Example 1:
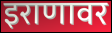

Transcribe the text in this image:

इराणावर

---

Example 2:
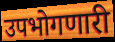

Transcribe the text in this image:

उपभोगणारी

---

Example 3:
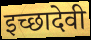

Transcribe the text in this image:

इच्छादेवी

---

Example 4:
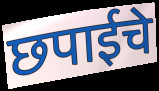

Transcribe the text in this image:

छपाईचे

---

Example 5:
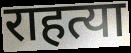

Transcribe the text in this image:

राहत्या